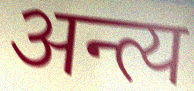
अन्त्य